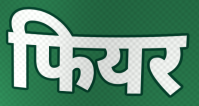
फियर